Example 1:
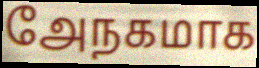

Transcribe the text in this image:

அேநகமாக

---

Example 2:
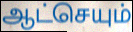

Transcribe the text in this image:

ஆட்செயும்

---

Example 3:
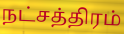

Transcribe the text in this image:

நட்சத்திரம்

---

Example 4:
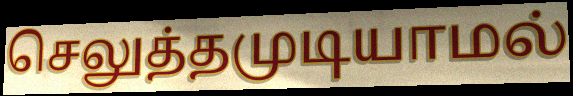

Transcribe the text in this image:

செலுத்தமுடியாமல்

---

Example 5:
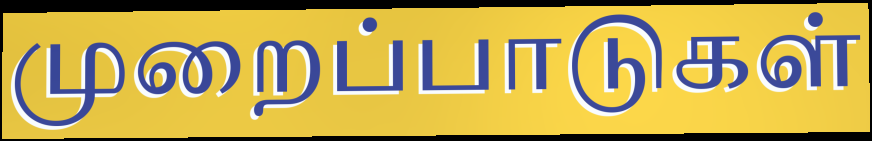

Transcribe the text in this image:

முறைப்பாடுகள்